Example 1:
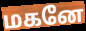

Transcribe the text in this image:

மகனே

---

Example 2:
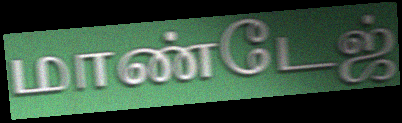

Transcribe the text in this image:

மாண்டேஜ்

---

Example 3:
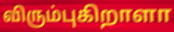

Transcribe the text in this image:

விரும்புகிறாளா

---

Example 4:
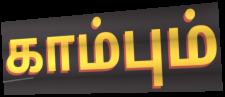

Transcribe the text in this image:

காம்பும்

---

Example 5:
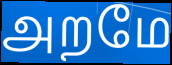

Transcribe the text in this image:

அறமே